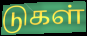
டுகள்